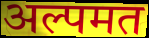
अल्पमत